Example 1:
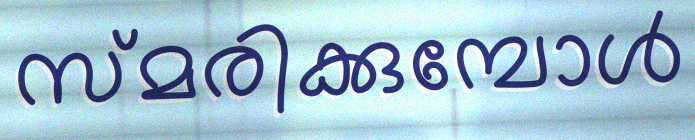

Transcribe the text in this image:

സ്മരിക്കുമ്പോൾ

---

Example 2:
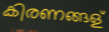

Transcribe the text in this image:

കിരണങ്ങള്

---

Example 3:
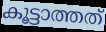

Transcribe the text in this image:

കൂട്ടാത്തത്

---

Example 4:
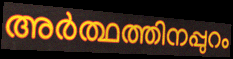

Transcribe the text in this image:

അർത്ഥത്തിനപ്പുറം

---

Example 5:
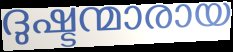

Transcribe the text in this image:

ദുഷ്ടന്മാരായ